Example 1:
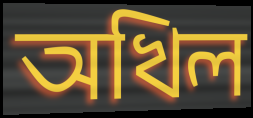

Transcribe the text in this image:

অখিল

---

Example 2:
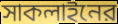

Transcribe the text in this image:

সাকলাইনের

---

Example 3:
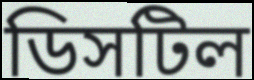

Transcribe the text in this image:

ডিসটিল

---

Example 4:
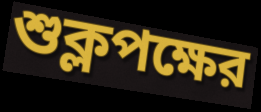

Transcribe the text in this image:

শুক্লপক্ষের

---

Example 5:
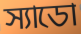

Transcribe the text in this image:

স্যাডো